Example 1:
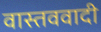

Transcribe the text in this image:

वास्तववादी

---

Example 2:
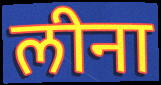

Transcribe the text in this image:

लीना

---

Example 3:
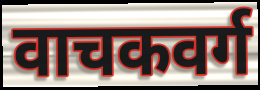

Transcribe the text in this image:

वाचकवर्ग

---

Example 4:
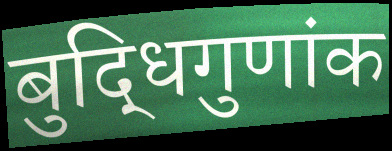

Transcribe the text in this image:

बुद्धिगुणांक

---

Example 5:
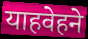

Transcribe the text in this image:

याहवेहने